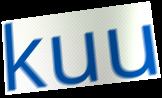
kuu